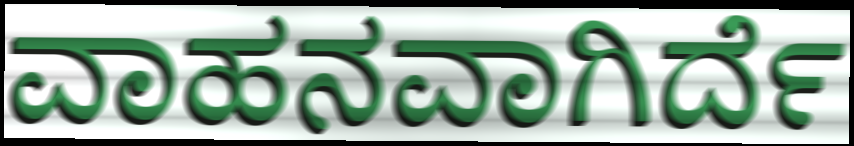
ವಾಹನವಾಗಿರ್ದೆ